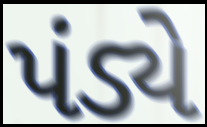
પંડ્યે